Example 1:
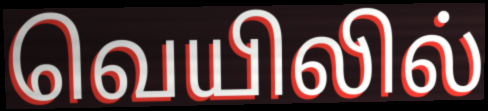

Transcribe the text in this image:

வெயிலில்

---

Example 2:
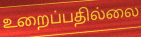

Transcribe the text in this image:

உறைப்பதில்லை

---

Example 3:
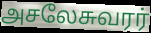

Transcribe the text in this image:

அசலேசுவரர்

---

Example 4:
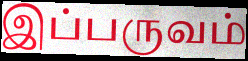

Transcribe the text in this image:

இப்பருவம்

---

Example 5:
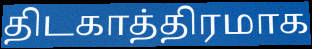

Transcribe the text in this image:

திடகாத்திரமாக